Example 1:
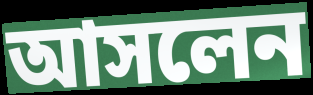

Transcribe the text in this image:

আসলেন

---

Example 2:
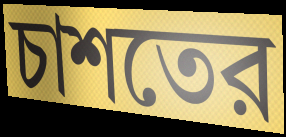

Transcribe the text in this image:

চাশতের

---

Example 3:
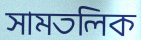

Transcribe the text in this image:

সামতলিক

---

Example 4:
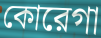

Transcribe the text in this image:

কোরেগা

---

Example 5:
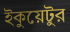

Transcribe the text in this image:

ইকুয়েটুর